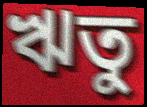
ঋতু